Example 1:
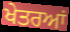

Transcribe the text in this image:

ਖੇਤਰਆਂ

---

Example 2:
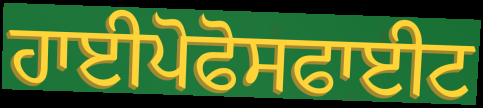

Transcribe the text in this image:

ਹਾਈਪੋਫੋਸਫਾਈਟ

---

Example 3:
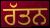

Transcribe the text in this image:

ਰੱਤਨ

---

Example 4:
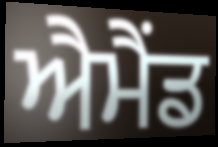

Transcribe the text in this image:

ਐਮੈਂਡ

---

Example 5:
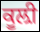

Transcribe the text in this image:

ਕੂਲ਼ੀ